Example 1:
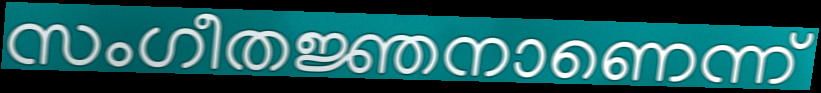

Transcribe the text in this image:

സംഗീതജ്ഞനാണെന്ന്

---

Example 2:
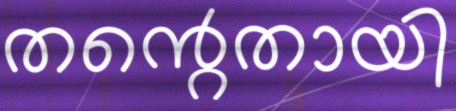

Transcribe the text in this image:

തന്റെതായി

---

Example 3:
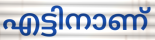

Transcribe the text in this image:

എട്ടിനാണ്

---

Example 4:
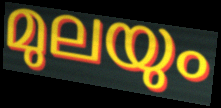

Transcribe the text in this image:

മുലയും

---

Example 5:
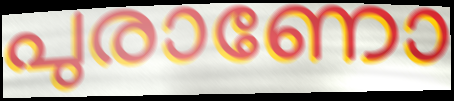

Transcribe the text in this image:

പുരാണോ